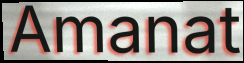
Amanat